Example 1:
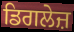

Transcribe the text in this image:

ਡਿਗਲੇਜ਼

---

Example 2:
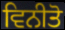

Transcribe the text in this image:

ਵਿਨੀਤੋ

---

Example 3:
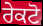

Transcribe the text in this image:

ਰੇਕਟੋ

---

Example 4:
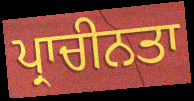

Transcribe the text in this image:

ਪ੍ਰਾਚੀਨਤਾ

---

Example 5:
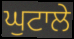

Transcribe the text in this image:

ਘੁਟਾਲੇ